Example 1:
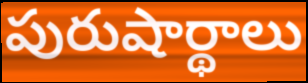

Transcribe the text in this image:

పురుషార్థాలు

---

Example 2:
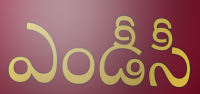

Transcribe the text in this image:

ఎండీసీ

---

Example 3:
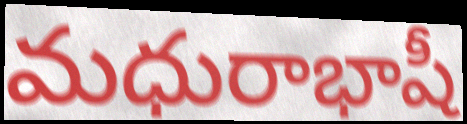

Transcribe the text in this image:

మధురాభాషీ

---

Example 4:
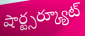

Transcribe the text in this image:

షార్ట్సర్క్యూట్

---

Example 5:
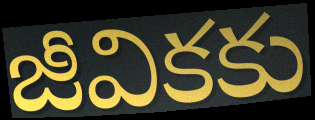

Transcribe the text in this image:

జీవికకు